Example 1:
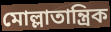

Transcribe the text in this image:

মোল্লাতান্ত্রিক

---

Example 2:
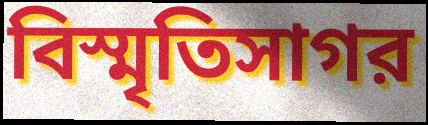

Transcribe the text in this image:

বিস্মৃতিসাগর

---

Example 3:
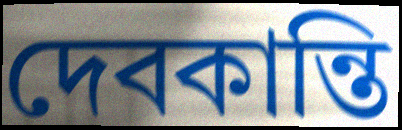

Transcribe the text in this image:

দেবকান্তি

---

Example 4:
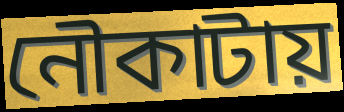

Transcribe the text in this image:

নৌকাটায়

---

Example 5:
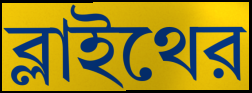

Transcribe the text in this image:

ব্লাইথের